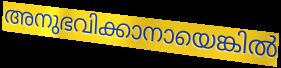
അനുഭവിക്കാനായെങ്കിൽ